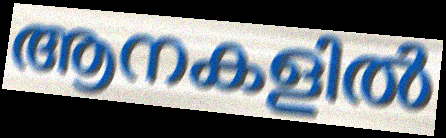
ആനകളിൽ